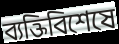
ব্যক্তিবিশেষে